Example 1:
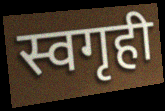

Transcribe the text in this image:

स्वगृही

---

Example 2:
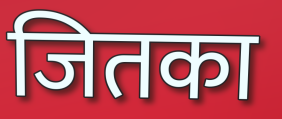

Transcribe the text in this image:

जितका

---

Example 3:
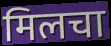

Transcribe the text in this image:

मिलचा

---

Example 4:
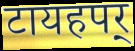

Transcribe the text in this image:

टायहपर्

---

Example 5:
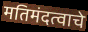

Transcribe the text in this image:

मतिमंदत्वाचे